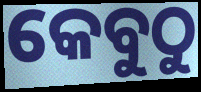
କେବୁଠୁ